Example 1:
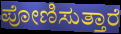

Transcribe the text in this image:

ಪೋಣಿಸುತ್ತಾರೆ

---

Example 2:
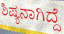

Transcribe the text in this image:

ಶಿಷ್ಯನಾಗಿದ್ದೆ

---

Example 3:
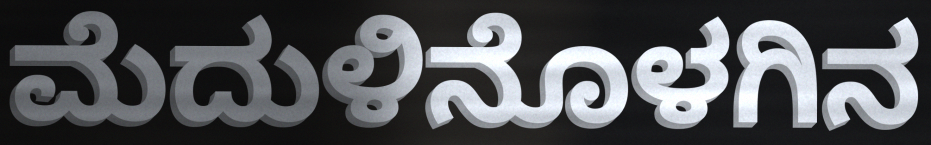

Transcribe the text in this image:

ಮೆದುಳಿನೊಳಗಿನ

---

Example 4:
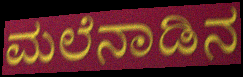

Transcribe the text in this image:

ಮಲೆನಾಡಿನ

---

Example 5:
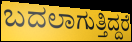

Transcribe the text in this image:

ಬದಲಾಗುತ್ತಿದ್ದರೆ